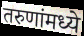
तरुणांमध्ये